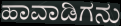
ಹಾವಾಡಿಗನು